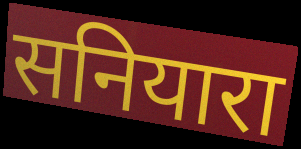
सनियारा